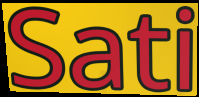
Sati